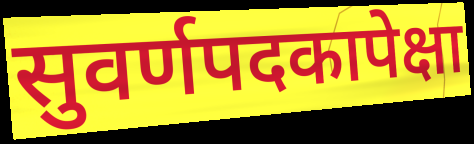
सुवर्णपदकापेक्षा